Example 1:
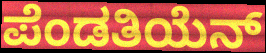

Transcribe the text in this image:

ಪೆಂಡತಿಯೆನ್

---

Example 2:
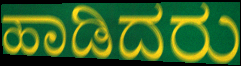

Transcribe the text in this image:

ಹಾಡಿದರು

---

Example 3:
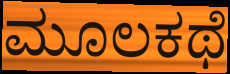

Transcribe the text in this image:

ಮೂಲಕಥೆ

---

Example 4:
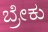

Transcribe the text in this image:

ಬ್ರೇಕು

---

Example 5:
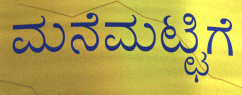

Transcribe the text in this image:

ಮನೆಮಟ್ಟಿಗೆ